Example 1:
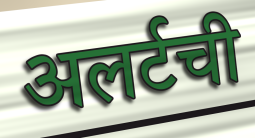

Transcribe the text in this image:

अलर्टची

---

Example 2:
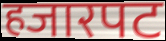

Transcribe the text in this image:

हजारपट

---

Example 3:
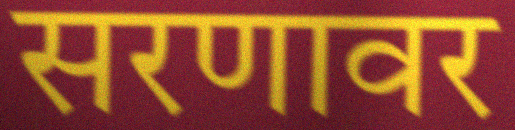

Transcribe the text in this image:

सरणावर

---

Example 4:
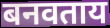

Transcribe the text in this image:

बनवताय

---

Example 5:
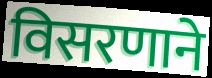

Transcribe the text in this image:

विसरणाने